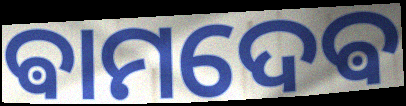
ଵାମଦେଵ